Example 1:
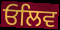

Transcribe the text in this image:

ਓਲਿਵ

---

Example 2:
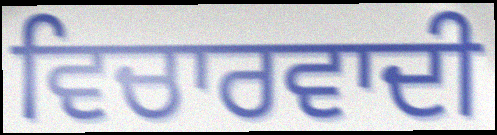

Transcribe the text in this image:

ਵਿਚਾਰਵਾਦੀ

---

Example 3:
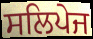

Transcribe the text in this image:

ਸਲਿਪੇਜ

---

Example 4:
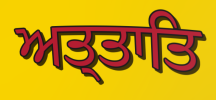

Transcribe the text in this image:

ਅਤ੍ਤਾਤਿ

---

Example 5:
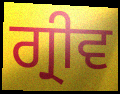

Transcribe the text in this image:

ਗ੍ਰੀਵ